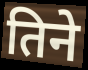
तिने